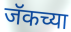
जॅकच्या